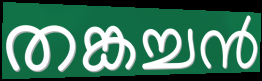
തങ്കച്ചൻ